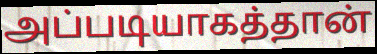
அப்படியாகத்தான்